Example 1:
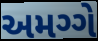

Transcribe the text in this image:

અમગ્ગે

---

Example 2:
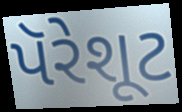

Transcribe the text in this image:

પૅરેશૂટ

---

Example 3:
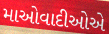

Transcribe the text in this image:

માઓવાદીઓએ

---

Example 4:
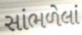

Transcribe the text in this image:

સાંભળેલાં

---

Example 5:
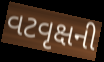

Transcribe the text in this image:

વટવૃક્ષની